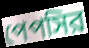
পেপসির